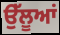
ਉੱਲੂਆਂ